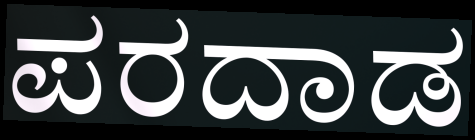
ಪರದಾಡ